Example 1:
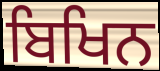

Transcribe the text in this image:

ਬਿਖਿਨ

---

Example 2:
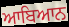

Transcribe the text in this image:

ਆਬਿਆਨ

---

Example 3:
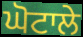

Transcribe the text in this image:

ਘੋਟਾਲੇ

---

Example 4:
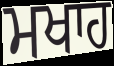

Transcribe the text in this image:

ਮਖਾਹ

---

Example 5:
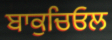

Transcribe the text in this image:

ਬਾਕੁਚਿਓਲ